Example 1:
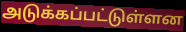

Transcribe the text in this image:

அடுக்கப்பட்டுள்ளன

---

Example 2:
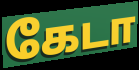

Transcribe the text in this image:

கேடா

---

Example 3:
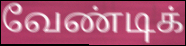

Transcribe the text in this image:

வேண்டிக்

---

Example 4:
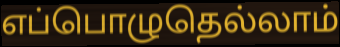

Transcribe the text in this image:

எப்பொழுதெல்லாம்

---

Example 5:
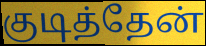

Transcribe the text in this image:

குடித்தேன்